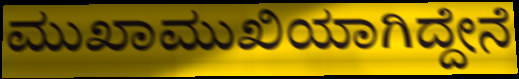
ಮುಖಾಮುಖಿಯಾಗಿದ್ದೇನೆ